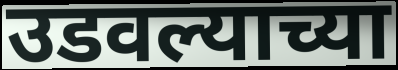
उडवल्याच्या